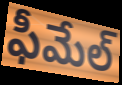
ఫీమేల్